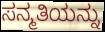
ಸನ್ಮತಿಯನ್ನು